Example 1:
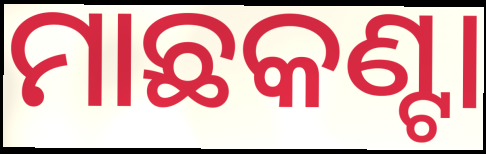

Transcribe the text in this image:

ମାଛକଣ୍ଟା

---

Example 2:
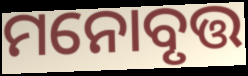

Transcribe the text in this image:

ମନୋବୃତ୍ତ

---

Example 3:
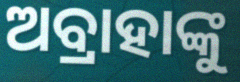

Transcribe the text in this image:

ଅବ୍ରାହାଙ୍କୁ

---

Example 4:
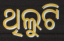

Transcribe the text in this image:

ଥିଲୁଟି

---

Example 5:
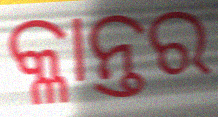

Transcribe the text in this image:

କ୍ଳାନ୍ତର